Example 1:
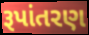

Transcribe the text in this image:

રૂપાંતરણ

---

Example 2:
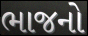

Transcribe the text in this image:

ભાજનો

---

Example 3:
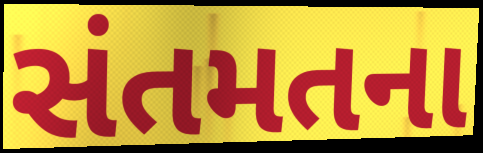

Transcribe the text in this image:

સંતમતના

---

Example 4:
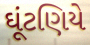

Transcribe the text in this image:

ઘૂંટણિયે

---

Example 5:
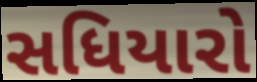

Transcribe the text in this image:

સધિયારો